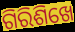
ଗିରିଶିଖେ